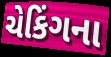
ચેકિંગના